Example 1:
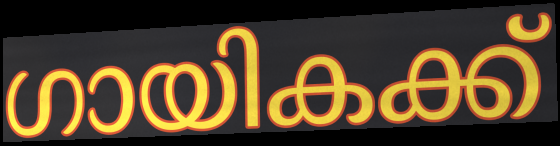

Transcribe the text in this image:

ഗായികക്ക്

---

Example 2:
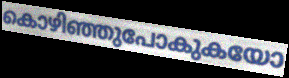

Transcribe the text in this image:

കൊഴിഞ്ഞുപോകുകയോ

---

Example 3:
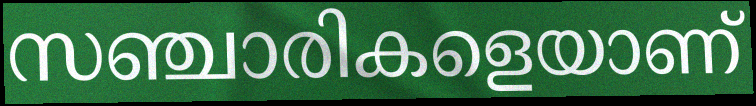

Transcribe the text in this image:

സഞ്ചാരികളെയാണ്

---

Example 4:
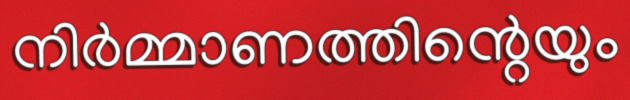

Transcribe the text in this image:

നിർമ്മാണത്തിന്റെയും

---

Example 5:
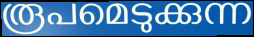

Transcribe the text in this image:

രൂപമെടുക്കുന്ന